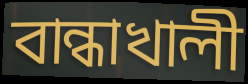
বান্ধাখালী